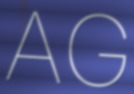
AG